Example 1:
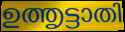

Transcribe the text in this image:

ഉത്തൃട്ടാതി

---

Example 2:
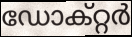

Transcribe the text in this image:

ഡോക്റ്റർ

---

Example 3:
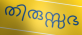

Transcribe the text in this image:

തിരുസ്സഭ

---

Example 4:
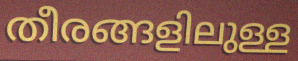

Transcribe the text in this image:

തീരങ്ങളിലുള്ള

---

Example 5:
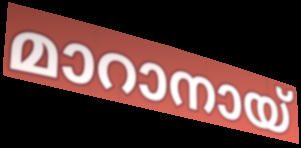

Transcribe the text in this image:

മാറാനായ്